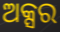
ଅକ୍ସର